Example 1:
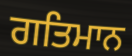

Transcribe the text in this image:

ਗਤਿਮਾਨ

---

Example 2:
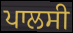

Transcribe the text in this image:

ਪਾਲਸੀ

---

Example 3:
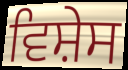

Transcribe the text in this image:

ਵਿਸ਼ੇਸ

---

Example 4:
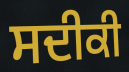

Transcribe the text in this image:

ਸਦੀਕੀ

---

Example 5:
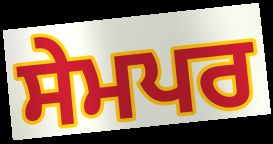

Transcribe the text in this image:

ਸੇਮਪਰ